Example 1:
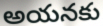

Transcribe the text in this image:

అయనకు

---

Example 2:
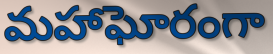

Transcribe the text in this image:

మహాఘోరంగా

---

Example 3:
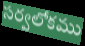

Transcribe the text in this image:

సర్వలోకము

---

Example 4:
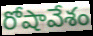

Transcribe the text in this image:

రోషావేశం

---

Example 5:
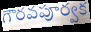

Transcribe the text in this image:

గౌరవపూర్వక